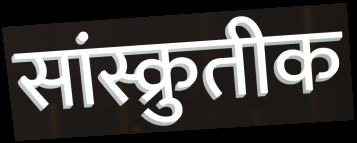
सांस्क्रुतीक